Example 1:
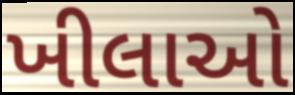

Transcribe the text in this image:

ખીલાઓ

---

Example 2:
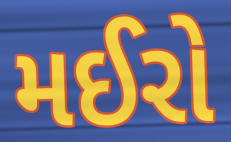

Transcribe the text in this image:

મઈરો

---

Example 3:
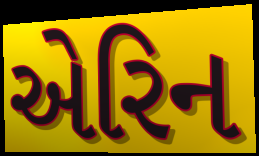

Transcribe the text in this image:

એરિન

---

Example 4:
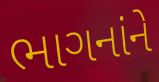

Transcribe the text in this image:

ભાગનાંને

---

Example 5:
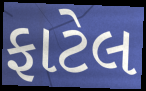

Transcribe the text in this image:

ફાટેલ